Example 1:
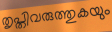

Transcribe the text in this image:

തൃപ്തിവരുത്തുകയും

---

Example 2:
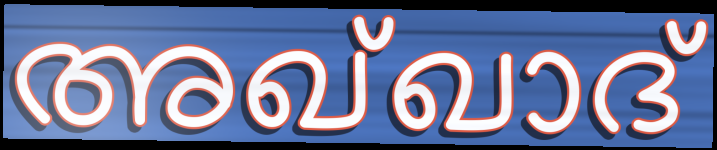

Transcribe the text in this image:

അഖ്ഖാദ്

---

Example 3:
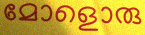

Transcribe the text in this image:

മോളൊരു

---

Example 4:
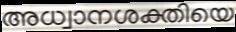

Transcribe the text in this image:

അധ്വാനശക്തിയെ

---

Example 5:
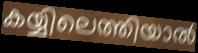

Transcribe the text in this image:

കയ്യിലെത്തിയാൽ